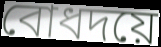
বোধদয়ে